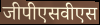
जीपीएसवीएस